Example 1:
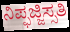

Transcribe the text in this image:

ನಿಪ್ಫಜ್ಜಿಸ್ಸತಿ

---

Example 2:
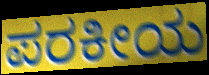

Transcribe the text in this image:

ಪರಕೀಯ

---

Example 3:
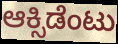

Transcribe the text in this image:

ಆಕ್ಸಿಡೆಂಟು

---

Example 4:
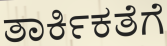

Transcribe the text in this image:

ತಾರ್ಕಿಕತೆಗೆ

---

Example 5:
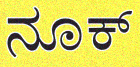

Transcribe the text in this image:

ನೂಕ್